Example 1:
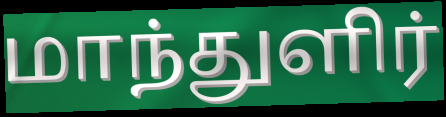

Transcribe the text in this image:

மாந்துளிர்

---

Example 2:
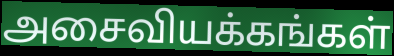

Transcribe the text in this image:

அசைவியக்கங்கள்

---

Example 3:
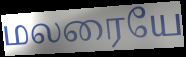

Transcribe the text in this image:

மலரையே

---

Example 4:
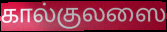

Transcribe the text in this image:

கால்குலஸை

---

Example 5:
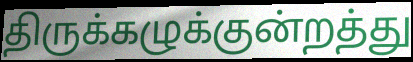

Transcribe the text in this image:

திருக்கழுக்குன்றத்து